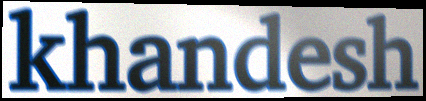
khandesh